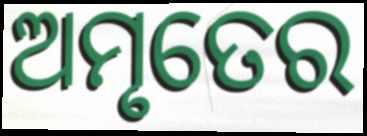
ଅମୃତେର